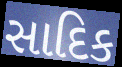
સાદિક